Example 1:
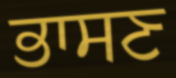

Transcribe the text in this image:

ਭਾਸਣ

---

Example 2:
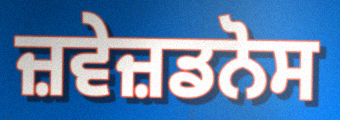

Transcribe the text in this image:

ਜ਼ਵੇਜ਼ਡਨੋਸ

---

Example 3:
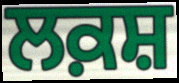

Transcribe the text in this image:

ਲਕ਼ਸ਼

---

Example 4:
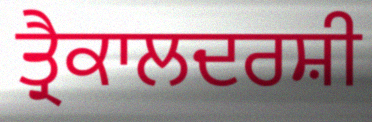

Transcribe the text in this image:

ਤ੍ਰੈਕਾਲਦਰਸ਼ੀ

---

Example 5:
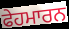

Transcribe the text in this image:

ਫੇਹਮਾਰਨ